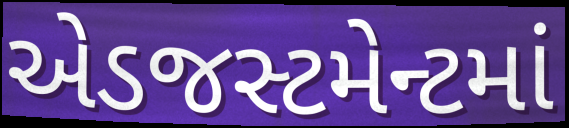
એડજસ્ટમેન્ટમાં